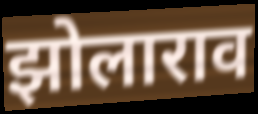
झोलाराव